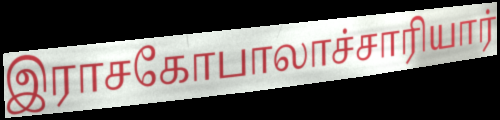
இராசகோபாலாச்சாரியார்